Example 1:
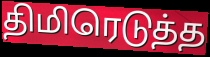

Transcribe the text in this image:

திமிரெடுத்த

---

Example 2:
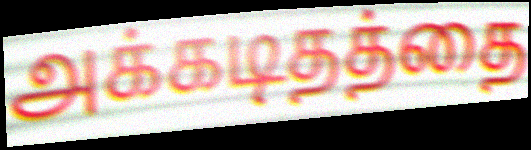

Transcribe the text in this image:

அக்கடிதத்தை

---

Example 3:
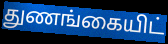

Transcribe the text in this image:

துணங்கையிட்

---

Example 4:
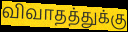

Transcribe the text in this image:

விவாதத்துக்கு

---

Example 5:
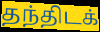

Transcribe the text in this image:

தந்திடக்